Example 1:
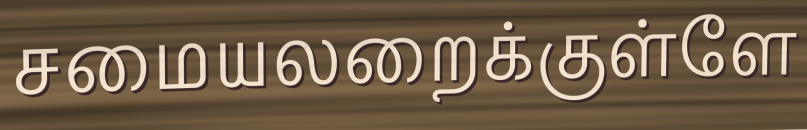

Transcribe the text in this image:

சமையலறைக்குள்ளே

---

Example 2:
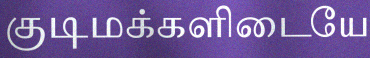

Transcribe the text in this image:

குடிமக்களிடையே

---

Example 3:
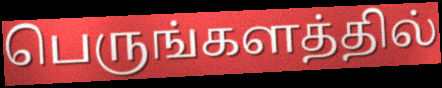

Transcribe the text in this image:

பெருங்களத்தில்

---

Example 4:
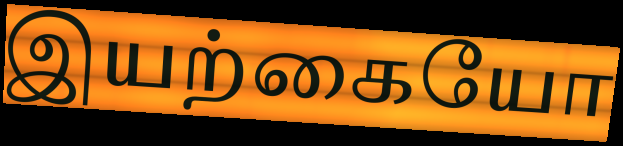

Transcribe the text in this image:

இயற்கையோ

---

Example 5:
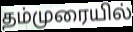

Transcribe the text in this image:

தம்முரையில்